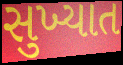
સુખ્યાત